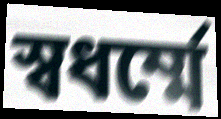
স্বধর্ম্মে